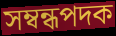
সম্বন্ধপদক